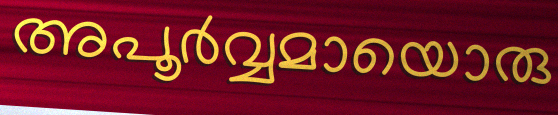
അപൂർവ്വമായൊരു